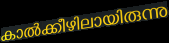
കാൽക്കീഴിലായിരുന്നു